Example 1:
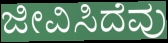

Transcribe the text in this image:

ಜೀವಿಸಿದೆವು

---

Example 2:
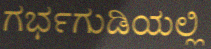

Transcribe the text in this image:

ಗರ್ಭಗುಡಿಯಲ್ಲಿ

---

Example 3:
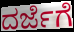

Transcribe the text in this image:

ದರ್ಜೆಗೆ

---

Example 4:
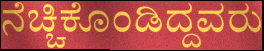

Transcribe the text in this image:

ನೆಚ್ಚಿಕೊಂಡಿದ್ದವರು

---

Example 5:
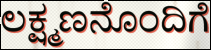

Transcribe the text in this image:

ಲಕ್ಷ್ಮಣನೊಂದಿಗೆ